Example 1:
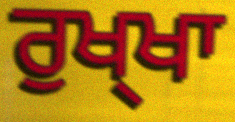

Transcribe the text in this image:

ਰੁਖ੍ਖਾ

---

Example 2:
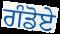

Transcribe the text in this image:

ਗੰਡੋਏ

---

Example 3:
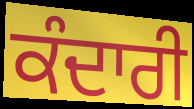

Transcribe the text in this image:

ਕੰਦਾਰੀ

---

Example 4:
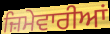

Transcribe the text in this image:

ਜ਼ਿਮੇਵਾਰੀਆਂ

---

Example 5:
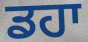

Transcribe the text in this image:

ਡਹਾ